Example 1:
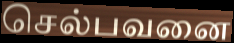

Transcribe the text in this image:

செல்பவனை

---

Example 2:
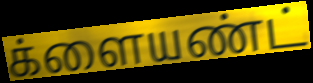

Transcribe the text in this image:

க்ளையண்ட்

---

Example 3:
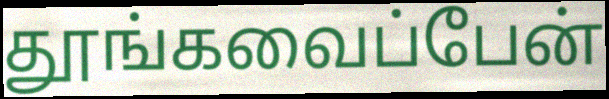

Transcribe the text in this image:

தூங்கவைப்பேன்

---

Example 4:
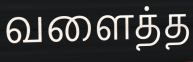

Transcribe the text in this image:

வளைத்த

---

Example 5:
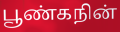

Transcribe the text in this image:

பூண்கநின்